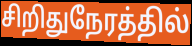
சிறிதுநேரத்தில்